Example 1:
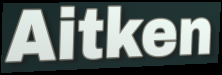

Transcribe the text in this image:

Aitken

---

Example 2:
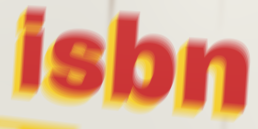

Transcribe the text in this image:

isbn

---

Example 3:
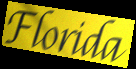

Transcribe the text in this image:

Florida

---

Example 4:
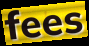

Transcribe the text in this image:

fees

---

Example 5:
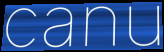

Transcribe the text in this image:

canu